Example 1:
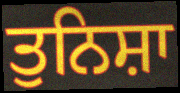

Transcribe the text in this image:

ਤੁਨਿਸ਼ਾ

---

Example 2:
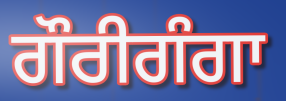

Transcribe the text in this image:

ਗੌਰੀਗੰਗਾ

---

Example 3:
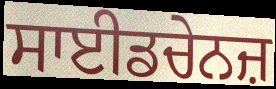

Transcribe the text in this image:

ਸਾਈਡਚੇਨਜ਼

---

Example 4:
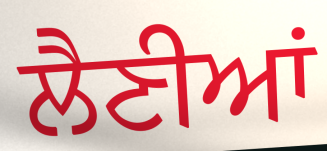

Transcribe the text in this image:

ਲੈਣੀਆਂ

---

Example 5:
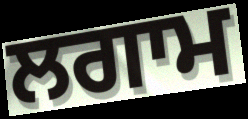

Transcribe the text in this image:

ਲਗਾਮ